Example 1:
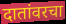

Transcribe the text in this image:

दातांवरचा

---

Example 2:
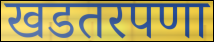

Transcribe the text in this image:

खडतरपणा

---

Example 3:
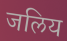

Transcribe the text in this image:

जलिय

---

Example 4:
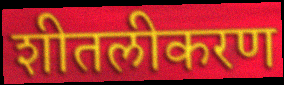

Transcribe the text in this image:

शीतलीकरण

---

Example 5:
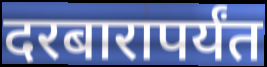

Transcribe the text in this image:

दरबारापर्यंत